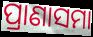
ପ୍ରାଣାସମା